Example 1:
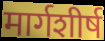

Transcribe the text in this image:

मार्गशीर्ष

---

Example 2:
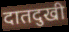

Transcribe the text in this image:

दातदुखी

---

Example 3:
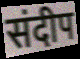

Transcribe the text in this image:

संदीप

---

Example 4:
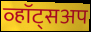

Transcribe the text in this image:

व्हॉट्सअप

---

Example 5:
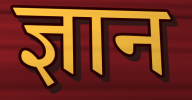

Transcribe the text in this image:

ज्ञान